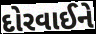
દોરવાઈને